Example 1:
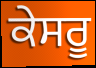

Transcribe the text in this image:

ਕੇਸਰੂ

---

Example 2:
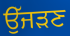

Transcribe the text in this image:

ਉੱਜੜਣ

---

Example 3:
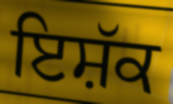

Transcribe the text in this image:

ਇਸ਼ੱਕ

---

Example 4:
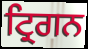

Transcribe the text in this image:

ਟ੍ਰਿਗਨ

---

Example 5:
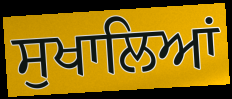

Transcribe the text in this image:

ਸੁਖਾਲਿਆਂ